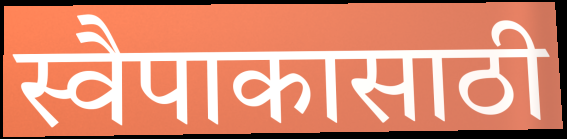
स्वैपाकासाठी